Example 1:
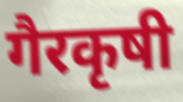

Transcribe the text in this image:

गैरकृषी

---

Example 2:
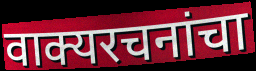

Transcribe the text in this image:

वाक्यरचनांचा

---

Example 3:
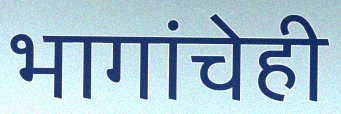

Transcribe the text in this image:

भागांचेही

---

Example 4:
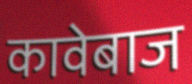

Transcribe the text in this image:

कावेबाज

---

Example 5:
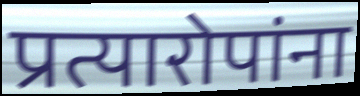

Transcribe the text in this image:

प्रत्यारोपांना